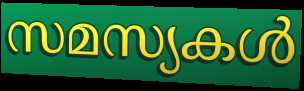
സമസ്യകൾ